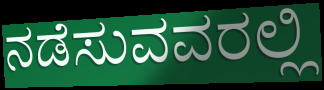
ನಡೆಸುವವರಲ್ಲಿ